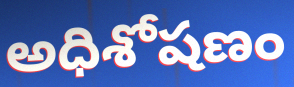
అధిశోషణం